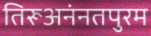
तिरूअनंनतपुरम